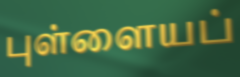
புள்ளையப்